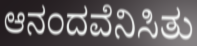
ಆನಂದವೆನಿಸಿತು